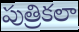
పుత్రికలా